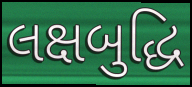
લક્ષબુદ્ધિ